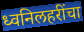
ध्वनिलहरींचा